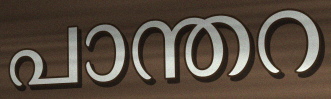
പാന്തറ